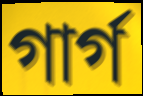
গাৰ্গ